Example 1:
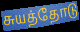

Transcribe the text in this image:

சுயத்தோடு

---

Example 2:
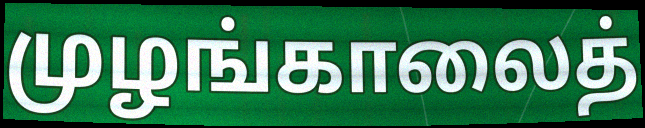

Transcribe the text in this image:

முழங்காலைத்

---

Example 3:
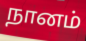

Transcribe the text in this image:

நானம்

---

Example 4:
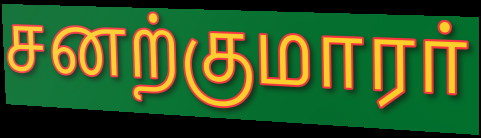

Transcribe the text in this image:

சனற்குமாரர்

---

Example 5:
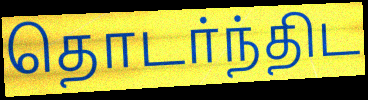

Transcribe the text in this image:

தொடர்ந்திட